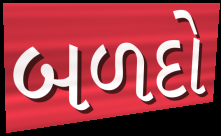
બળદો